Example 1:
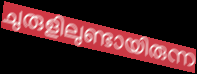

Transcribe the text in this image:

ചുരുളിലുണ്ടായിരുന്ന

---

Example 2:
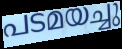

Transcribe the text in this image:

പടമയച്ചു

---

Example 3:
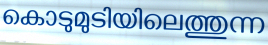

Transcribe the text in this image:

കൊടുമുടിയിലെത്തുന്ന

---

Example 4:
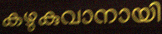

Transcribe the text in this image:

കഴുകുവാനായി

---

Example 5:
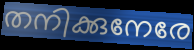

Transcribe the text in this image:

തനിക്കുനേരേ